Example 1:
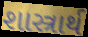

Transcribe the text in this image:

શાસ્ત્રાર્થ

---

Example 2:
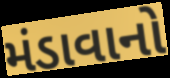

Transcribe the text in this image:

મંડાવાનો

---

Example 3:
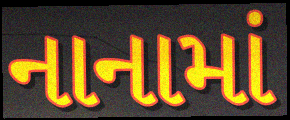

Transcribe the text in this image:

નાનામાં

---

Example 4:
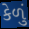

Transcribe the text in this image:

કેળું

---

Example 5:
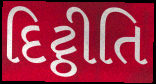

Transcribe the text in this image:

દિટ્ઠીતિ